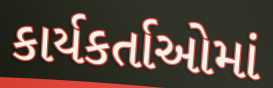
કાર્યકર્તાઓમાં